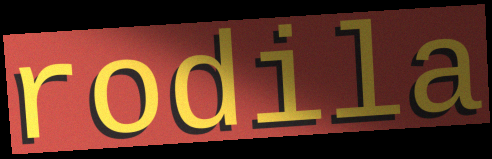
rodila